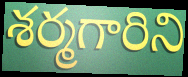
శర్మగారిని